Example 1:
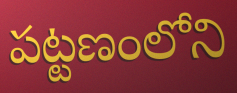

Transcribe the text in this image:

పట్టణంలోని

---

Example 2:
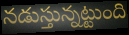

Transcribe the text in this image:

నడుస్తున్నట్టుంది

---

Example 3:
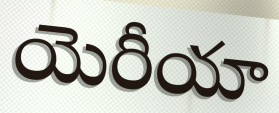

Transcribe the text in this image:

యెరీయా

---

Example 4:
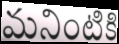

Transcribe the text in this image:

మనింటికి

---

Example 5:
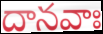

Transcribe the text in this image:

దానవాః